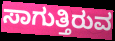
ಸಾಗುತ್ತಿರುವ